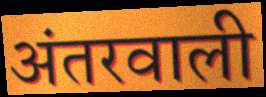
अंतरवाली